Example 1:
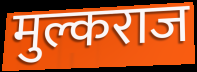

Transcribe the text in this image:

मुल्कराज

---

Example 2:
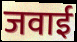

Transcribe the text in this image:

जवाई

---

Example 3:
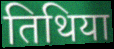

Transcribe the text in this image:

तिथिया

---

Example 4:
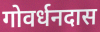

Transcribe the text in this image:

गोवर्धनदास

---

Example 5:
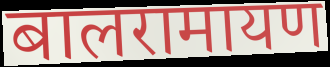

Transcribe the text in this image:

बालरामायण